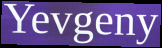
Yevgeny